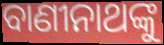
ବାଣୀନାଥଙ୍କୁ